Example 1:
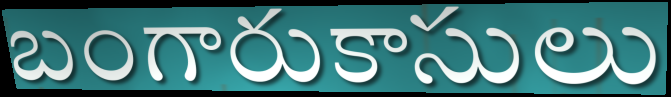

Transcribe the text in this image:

బంగారుకాసులు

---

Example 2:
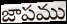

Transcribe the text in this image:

జాపము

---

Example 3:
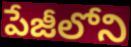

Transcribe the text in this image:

పేజీలోని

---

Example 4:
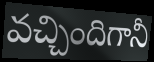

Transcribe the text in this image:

వచ్చిందిగానీ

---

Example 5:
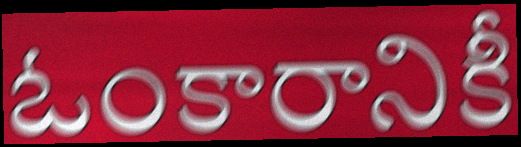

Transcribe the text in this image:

ఓంకారానికీ